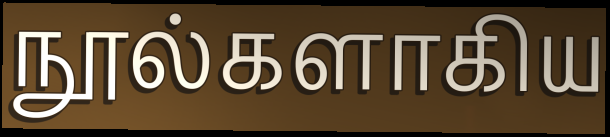
நூல்களாகிய